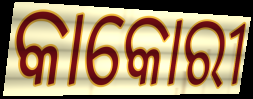
କାକୋରୀ